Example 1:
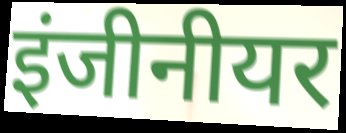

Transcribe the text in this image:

इंजीनीयर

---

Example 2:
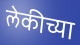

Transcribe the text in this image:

लेकीच्या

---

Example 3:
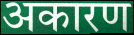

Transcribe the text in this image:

अकारण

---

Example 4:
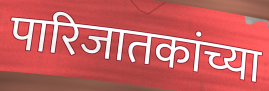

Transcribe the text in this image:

पारिजातकांच्या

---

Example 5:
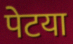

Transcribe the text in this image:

पेटया